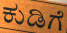
ಕುಡಿಗೆ